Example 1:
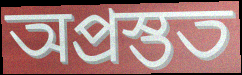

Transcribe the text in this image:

অপ্রস্তত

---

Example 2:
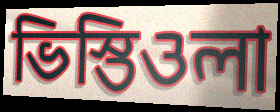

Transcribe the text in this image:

ভিস্তিওলা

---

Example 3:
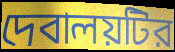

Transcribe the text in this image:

দেবালয়টির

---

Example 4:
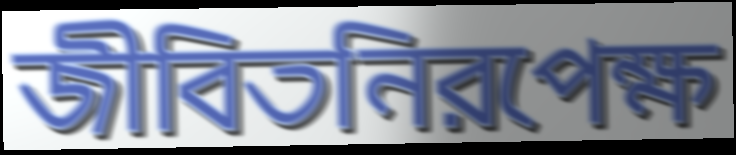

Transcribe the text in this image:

জীবিতনিরপেক্ষ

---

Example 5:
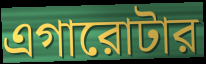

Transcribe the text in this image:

এগারোটার